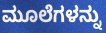
ಮೂಲೆಗಳನ್ನು